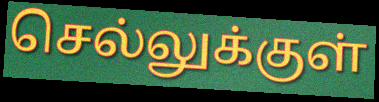
செல்லுக்குள்